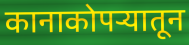
कानाकोपऱ्यातून